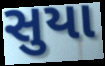
સુયા